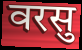
वरसु